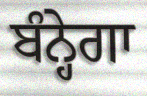
ਬੰਨ੍ਹੇਗਾ